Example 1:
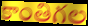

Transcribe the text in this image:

కాంతిగల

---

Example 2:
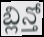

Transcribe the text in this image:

బ్లిన్తో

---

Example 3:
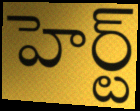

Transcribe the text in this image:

హెర్ట్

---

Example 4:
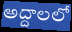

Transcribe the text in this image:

అద్దాలలో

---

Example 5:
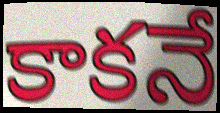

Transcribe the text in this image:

కాకనే